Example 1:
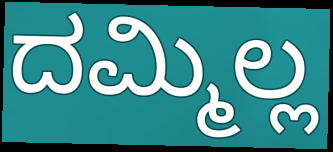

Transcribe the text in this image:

ದಮ್ಮಿಲ್ಲ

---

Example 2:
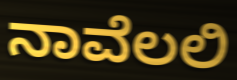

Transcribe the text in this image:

ನಾವೆಲಲಿ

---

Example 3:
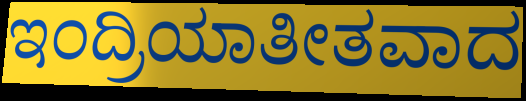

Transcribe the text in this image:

ಇಂದ್ರಿಯಾತೀತವಾದ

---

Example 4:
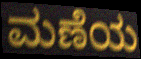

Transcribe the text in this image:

ಮಣೆಯ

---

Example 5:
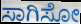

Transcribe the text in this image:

ಸಾಗಿಸೋ